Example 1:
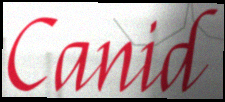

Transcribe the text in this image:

Canid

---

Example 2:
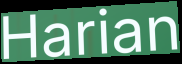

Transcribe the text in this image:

Harian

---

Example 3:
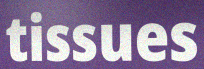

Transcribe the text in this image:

tissues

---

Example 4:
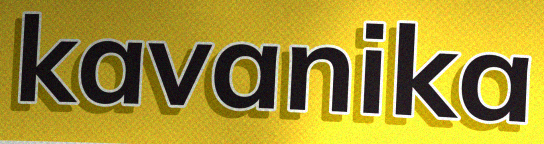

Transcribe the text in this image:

kavanika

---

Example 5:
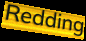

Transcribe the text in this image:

Redding